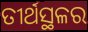
ତୀର୍ଥସ୍ଥଳର